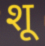
शू